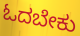
ಓದಬೇಕು